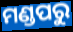
ମଣ୍ଡପରୁ